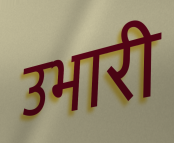
उभारी